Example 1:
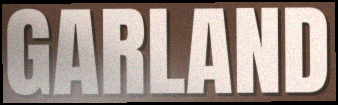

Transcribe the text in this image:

GARLAND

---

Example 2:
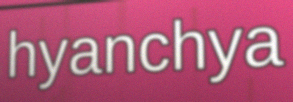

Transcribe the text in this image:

hyanchya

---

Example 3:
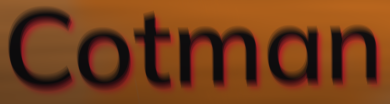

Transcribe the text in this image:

Cotman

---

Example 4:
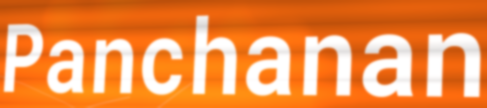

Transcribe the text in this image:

Panchanan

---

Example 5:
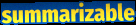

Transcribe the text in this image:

summarizable